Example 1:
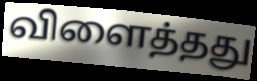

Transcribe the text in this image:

விளைத்தது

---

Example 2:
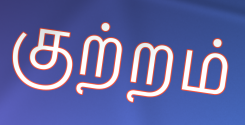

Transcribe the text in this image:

குற்றம்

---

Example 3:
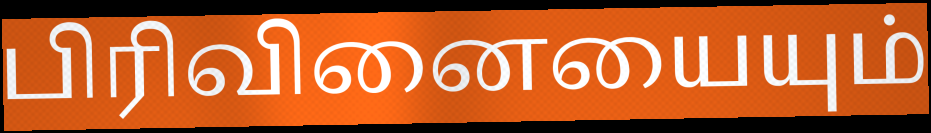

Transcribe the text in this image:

பிரிவினையையும்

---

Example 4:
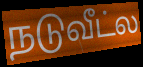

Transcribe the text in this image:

நடுவீட்ல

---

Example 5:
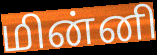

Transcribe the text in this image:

மின்னி